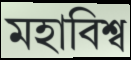
মহাবিশ্ব